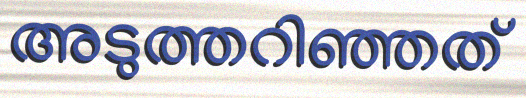
അടുത്തറിഞ്ഞത്